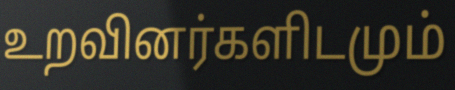
உறவினர்களிடமும்